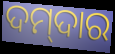
ଦମ୍‌ଦାର